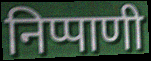
निप्पाणी